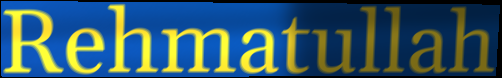
Rehmatullah